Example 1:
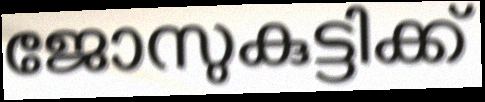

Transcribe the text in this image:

ജോസുകുട്ടിക്ക്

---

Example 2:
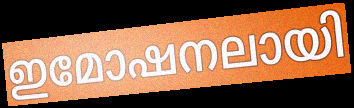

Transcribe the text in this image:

ഇമോഷനലായി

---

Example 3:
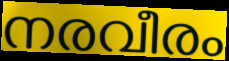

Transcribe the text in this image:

നരവീരം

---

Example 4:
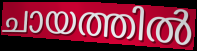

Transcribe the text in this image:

ചായത്തിൽ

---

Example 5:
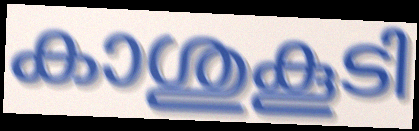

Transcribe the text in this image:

കാശുകൂടി